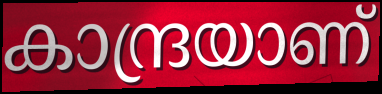
കാന്ദ്രയാണ്